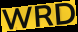
WRD